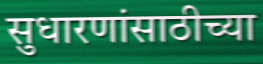
सुधारणांसाठीच्या